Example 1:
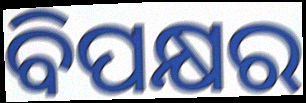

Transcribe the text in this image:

ବିପକ୍ଷର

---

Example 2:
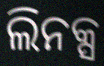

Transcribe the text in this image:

ଲିନକ୍ସ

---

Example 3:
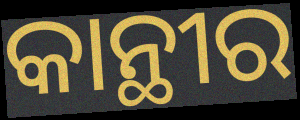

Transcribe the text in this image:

କାନ୍ଥୀର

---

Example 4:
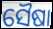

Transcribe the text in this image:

ସୈଷା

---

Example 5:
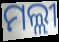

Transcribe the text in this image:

ମଲ୍ଲୀ